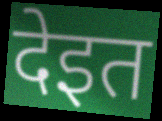
देइत